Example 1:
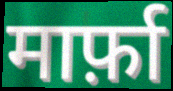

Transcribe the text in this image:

मार्फ़ा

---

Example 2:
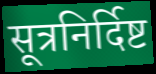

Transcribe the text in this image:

सूत्रनिर्दिष्ट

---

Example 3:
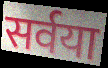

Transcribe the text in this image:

सर्वया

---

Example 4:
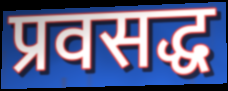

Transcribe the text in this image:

प्रवसद्ध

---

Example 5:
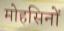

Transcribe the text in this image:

मोहसिनों